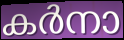
കർനാ